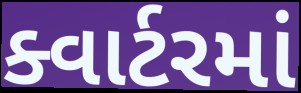
ક્વાર્ટરમાં